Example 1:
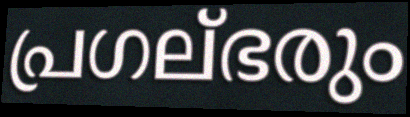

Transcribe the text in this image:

പ്രഗല്ഭരും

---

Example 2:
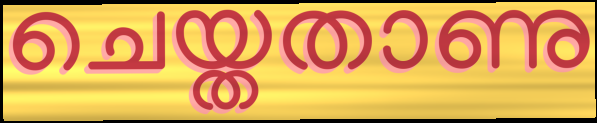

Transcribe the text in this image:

ചെയ്തതാണു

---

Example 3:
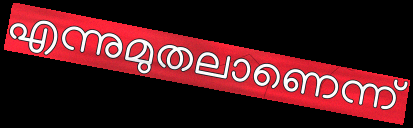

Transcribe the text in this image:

എന്നുമുതലാണെന്ന്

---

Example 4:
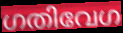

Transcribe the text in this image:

ഗതിവേഗ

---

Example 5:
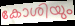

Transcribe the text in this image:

കോശിയും